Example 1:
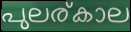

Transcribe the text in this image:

പുലര്കാല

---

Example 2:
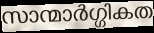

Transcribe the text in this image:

സാന്മാർഗ്ഗികത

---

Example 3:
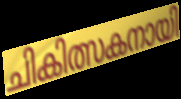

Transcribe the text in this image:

ചികിത്സകനായി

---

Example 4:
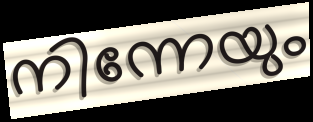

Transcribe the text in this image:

നിന്നേയും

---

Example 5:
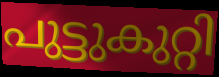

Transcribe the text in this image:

പുട്ടുകുറ്റി